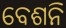
ବେଶନି